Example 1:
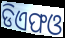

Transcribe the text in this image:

ଡିଏଫଓ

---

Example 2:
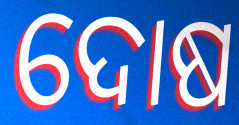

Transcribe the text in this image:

ଦୋଷ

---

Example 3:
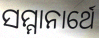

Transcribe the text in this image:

ସମ୍ମାନାର୍ଥେ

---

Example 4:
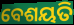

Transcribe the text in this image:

ବେଶୟତି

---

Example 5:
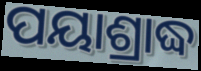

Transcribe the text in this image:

ପୟାଶ୍ରାଦ୍ଧ